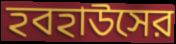
হবহাউসের